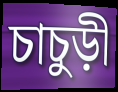
চাচুড়ী